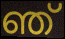
ഞ്